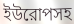
ইউরোপসহ